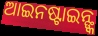
ଆଇନଷ୍ଟାଇନ୍ଙ୍କ